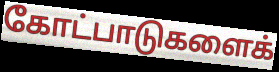
கோட்பாடுகளைக்